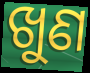
ଖୁଣ